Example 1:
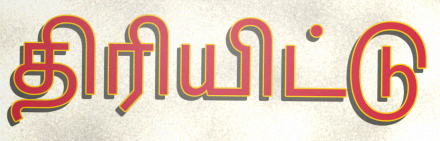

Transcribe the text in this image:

திரியிட்டு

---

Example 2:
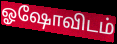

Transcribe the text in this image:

ஓஷோவிடம்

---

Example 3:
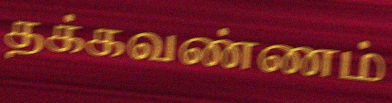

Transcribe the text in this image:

தக்கவண்ணம்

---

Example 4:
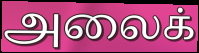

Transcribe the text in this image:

அலைக்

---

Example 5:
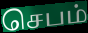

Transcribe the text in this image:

செபம்